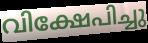
വിക്ഷേപിച്ചു